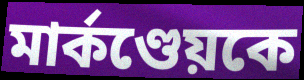
মার্কণ্ডেয়কে